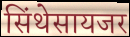
सिंथेसायजर